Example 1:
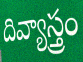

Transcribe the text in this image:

దివ్యాస్త్రం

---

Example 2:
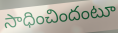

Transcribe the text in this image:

సాధించిందంటూ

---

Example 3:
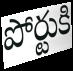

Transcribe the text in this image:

పోర్టుకి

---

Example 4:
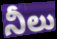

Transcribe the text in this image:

నీలు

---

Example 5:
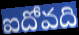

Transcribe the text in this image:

ఐదోవది